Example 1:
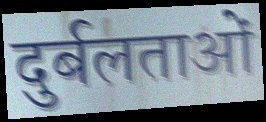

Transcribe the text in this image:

दुर्बलताओं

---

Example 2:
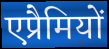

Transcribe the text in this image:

एप्रैमियों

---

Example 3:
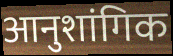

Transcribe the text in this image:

आनुशांगिक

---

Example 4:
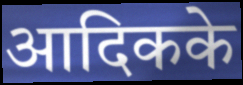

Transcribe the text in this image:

आदिकके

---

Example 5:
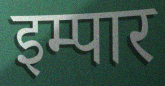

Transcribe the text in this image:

इम्पार